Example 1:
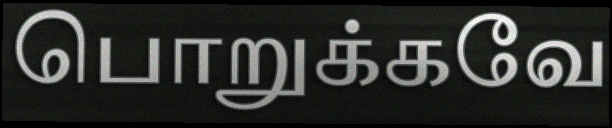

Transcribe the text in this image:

பொறுக்கவே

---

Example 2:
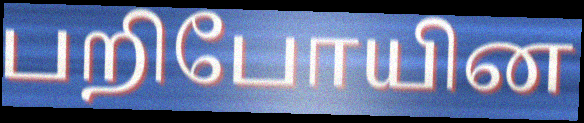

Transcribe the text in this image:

பறிபோயின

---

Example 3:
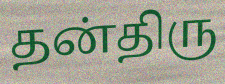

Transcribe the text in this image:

தன்திரு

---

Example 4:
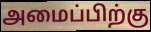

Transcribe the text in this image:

அமைப்பிற்கு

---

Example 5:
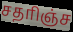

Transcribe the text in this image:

சதரிஞ்ச